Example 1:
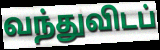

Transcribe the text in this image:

வந்துவிடப்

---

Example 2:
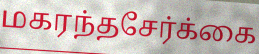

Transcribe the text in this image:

மகரந்தசேர்க்கை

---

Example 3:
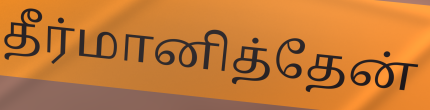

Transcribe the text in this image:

தீர்மானித்தேன்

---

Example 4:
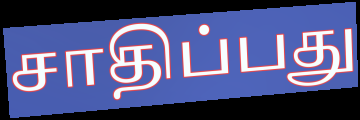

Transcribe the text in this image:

சாதிப்பது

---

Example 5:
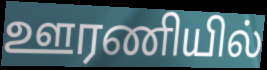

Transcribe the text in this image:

ஊரணியில்